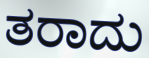
ತರಾದು